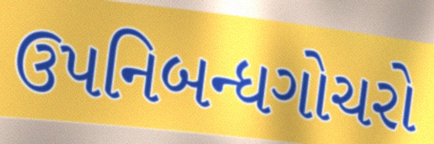
ઉપનિબન્ધગોચરો